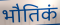
भौतिकं